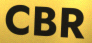
CBR